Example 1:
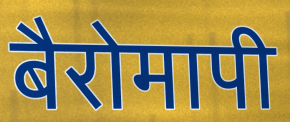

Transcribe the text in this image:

बैरोमापी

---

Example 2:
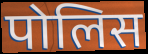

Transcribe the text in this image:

पोलिस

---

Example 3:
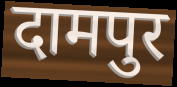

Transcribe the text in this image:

दामपुर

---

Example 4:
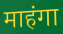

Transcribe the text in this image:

माहंगा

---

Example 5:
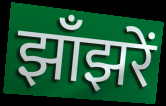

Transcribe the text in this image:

झाँझरें